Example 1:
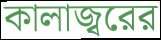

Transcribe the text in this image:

কালাজ্বরের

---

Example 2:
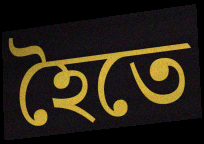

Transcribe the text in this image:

হৈতে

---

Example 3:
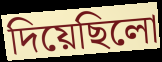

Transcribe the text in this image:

দিয়েছিলো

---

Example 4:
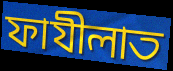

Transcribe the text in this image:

ফাযীলাত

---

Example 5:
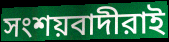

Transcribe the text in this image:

সংশয়বাদীরাই